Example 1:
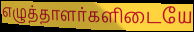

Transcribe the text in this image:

எழுத்தாளர்களிடையே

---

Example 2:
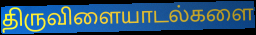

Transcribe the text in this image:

திருவிளையாடல்களை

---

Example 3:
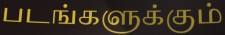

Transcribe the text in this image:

படங்களுக்கும்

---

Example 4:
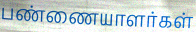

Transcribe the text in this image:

பண்ணையாளர்கள்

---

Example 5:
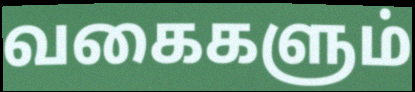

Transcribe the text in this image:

வகைகளும்